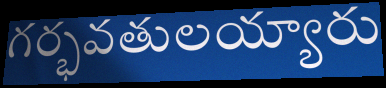
గర్భవతులయ్యారు